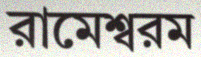
রামেশ্বরম